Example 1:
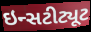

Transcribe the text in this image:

ઇન્સટીટ્યૂટ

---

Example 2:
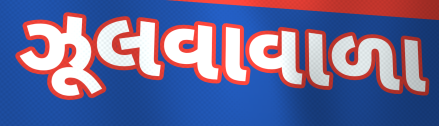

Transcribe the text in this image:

ઝૂલવાવાળા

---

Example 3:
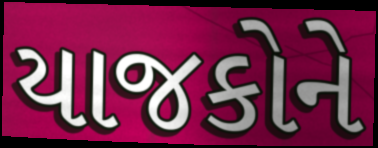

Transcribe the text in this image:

યાજકોને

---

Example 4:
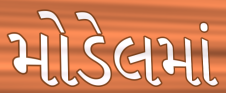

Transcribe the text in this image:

મોડેલમાં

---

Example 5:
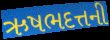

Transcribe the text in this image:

ઋષભદત્તની